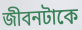
জীবনটাকে